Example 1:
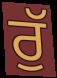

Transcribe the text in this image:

ਰੁੱ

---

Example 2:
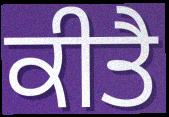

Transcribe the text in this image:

ਕੀਤੈ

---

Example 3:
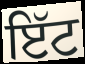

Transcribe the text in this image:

ਇੱਟ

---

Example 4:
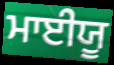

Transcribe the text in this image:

ਮਾਈਯੂ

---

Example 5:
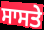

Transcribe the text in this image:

ਸਾਸਤੇ